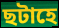
ছটাহে